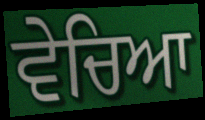
ਵੇਚਿਆ